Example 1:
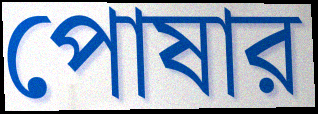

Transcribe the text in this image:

পোষার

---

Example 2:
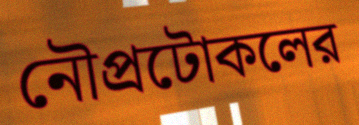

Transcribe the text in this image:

নৌপ্রটোকলের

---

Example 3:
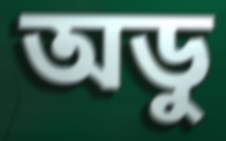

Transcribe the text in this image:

অডু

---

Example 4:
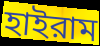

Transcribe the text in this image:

হাইরাম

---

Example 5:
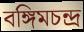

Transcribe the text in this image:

বঙ্গিমচন্দ্র